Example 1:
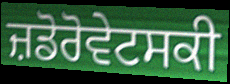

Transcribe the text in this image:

ਜ਼ਡੋਰੋਵੇਟਸਕੀ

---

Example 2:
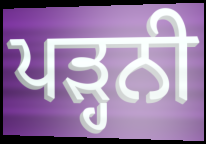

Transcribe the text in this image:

ਪੜ੍ਹਨੀ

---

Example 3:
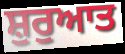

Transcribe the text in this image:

ਸ਼ੁਰੁਆਤ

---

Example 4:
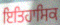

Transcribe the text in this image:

ਇਤਿਹਾਸਿਕ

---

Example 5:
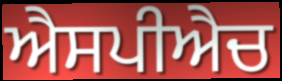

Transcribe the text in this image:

ਐਸਪੀਐਚ